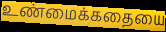
உண்மைக்கதையை